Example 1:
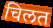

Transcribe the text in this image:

चिलत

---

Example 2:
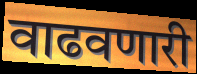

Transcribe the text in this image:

वाढवणारी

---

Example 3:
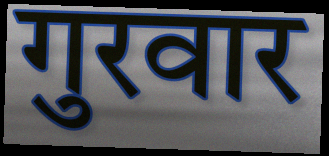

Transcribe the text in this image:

गुरवार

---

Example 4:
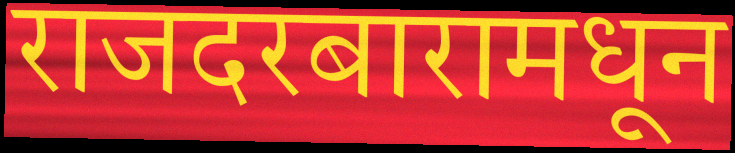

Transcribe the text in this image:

राजदरबारामधून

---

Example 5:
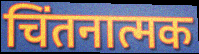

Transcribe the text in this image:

चिंतनात्मक